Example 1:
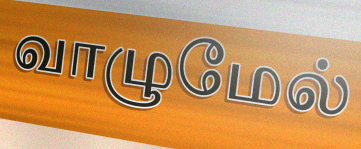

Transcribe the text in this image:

வாழுமேல்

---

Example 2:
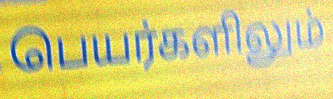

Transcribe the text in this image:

பெயர்களிலும்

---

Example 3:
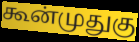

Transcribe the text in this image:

கூன்முதுகு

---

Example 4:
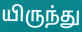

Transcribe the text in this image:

யிருந்து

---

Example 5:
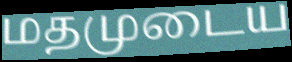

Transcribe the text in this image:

மதமுடைய